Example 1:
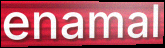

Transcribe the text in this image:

enamal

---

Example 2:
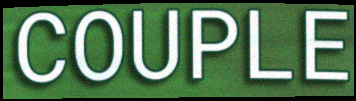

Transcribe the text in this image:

COUPLE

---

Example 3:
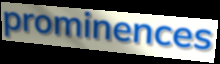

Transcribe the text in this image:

prominences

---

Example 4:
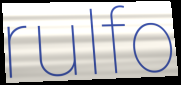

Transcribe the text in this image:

rulfo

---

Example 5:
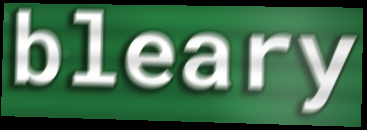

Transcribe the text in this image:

bleary